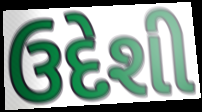
ઉદેશી